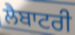
ਲੈਬਾਟਰੀ